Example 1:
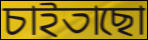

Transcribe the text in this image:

চাইতাছো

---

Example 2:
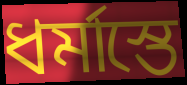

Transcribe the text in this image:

ধর্মাস্তে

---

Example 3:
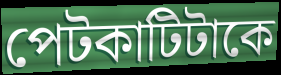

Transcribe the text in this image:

পেটকাটিটাকে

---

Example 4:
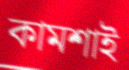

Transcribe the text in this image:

কামশাই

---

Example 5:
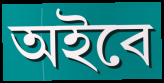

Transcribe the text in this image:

অইবে